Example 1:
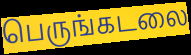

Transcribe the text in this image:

பெருங்கடலை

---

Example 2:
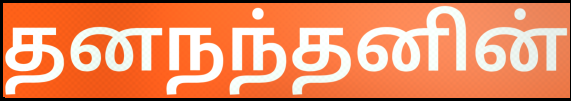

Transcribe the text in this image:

தனநந்தனின்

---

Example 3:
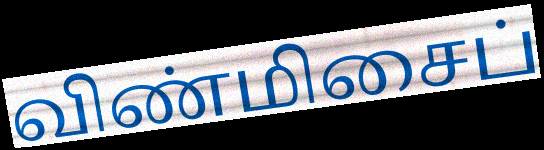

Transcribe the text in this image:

விண்மிசைப்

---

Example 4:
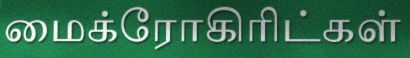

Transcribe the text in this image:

மைக்ரோகிரிட்கள்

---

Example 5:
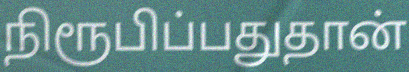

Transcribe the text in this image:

நிரூபிப்பதுதான்